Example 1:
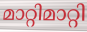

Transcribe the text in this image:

മാറ്റിമാറ്റി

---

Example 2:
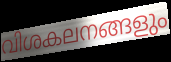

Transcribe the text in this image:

വിശകലനങ്ങളും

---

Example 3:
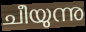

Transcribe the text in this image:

ചീയുന്നു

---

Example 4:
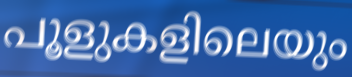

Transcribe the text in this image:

പൂളുകളിലെയും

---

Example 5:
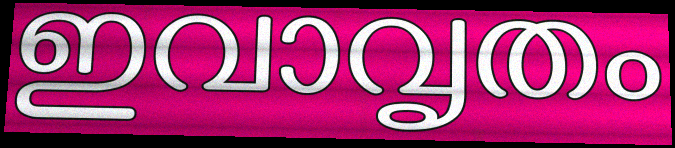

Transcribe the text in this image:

ഇവാവൃതം